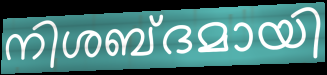
നിശബ്ദമായി